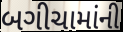
બગીચામાંની